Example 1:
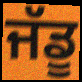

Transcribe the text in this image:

ਜੱਡੂ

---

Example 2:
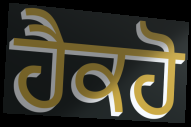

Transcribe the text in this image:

ਹੈਕਹੋ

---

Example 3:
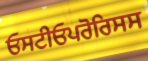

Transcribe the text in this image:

ਓਸਟੀਓਪਰੋਰਿਸਸ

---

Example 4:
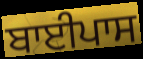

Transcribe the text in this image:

ਬਾਈਪਾਸ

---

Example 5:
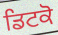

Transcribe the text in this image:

ਡਿਟਕੋ